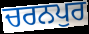
ਚਰਨਪੁਰ